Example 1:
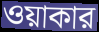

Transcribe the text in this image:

ওয়াকার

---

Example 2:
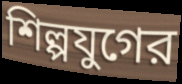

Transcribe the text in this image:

শিল্পযুগের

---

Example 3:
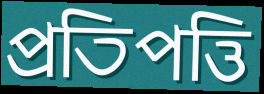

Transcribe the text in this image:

প্রতিপত্তি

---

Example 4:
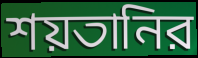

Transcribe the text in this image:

শয়তানির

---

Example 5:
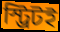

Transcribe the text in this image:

স্ট্রিটই